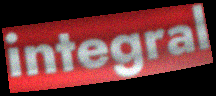
integral